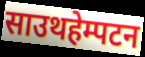
साउथहेम्पटन